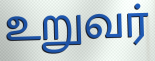
உறுவர்